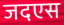
जदएस